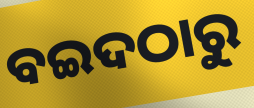
ବଇଦଠାରୁ